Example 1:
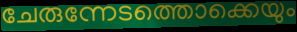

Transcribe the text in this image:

ചേരുന്നേടത്തൊക്കെയും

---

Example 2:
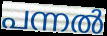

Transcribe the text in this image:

പന്നൽ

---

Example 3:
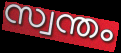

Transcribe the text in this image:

സ്വന്തം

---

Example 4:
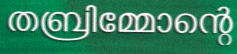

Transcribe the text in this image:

തബ്രിമ്മോന്റെ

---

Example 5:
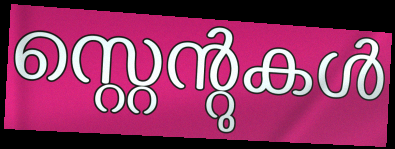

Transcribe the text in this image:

സ്റ്റെന്റുകൾ